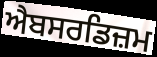
ਐਬਸਰਡਿਜ਼ਮ